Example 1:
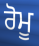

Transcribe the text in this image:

ਰੋਮੂ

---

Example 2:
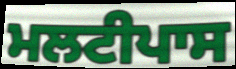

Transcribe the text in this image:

ਮਲਟੀਪਾਸ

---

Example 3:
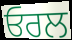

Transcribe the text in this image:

ਓਰਲ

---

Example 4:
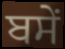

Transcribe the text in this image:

ਬਸੇਂ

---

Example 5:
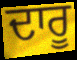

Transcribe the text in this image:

ਦਾਰੂ